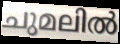
ചുമലിൽ